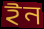
ইন